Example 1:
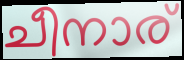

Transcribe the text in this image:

ചീനാര്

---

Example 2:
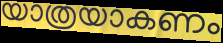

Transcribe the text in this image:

യാത്രയാകണം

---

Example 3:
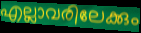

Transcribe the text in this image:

എല്ലാവരിലേക്കും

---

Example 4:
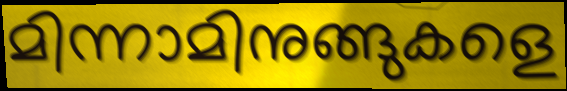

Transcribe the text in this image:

മിന്നാമിനുങ്ങുകളെ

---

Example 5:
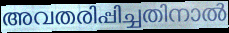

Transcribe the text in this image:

അവതരിപ്പിച്ചതിനാൽ